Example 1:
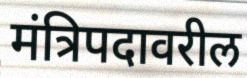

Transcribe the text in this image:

मंत्रिपदावरील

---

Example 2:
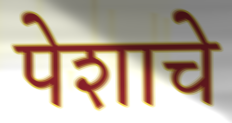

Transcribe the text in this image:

पेशाचे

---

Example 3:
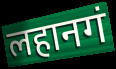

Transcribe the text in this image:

लहानगं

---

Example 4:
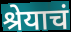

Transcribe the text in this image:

श्रेयाचं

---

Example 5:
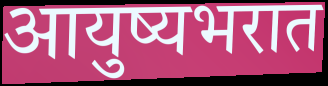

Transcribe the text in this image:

आयुष्यभरात